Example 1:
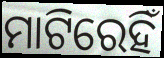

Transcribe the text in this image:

ମାଟିରେହିଁ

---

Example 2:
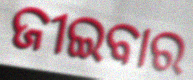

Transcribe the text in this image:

ଜୀଇବାର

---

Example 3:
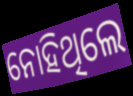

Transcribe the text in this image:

ନୋହିଥିଲେ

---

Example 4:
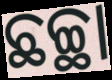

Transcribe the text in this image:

ଛଚ୍ଛା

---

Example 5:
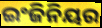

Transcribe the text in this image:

ଇଂଜିନିୟର